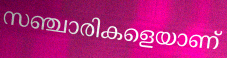
സഞ്ചാരികളെയാണ്